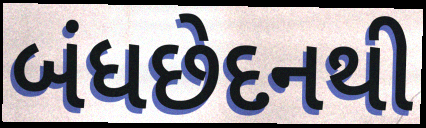
બંધછેદનથી